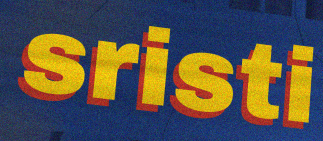
sristi